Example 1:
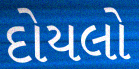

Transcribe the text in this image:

દોયલો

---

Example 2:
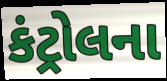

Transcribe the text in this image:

કંટ્રોલના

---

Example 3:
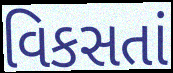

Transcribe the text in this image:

વિકસતાં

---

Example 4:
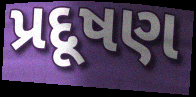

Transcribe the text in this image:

પ્રદૂષણ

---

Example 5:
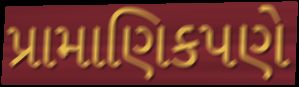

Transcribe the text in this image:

પ્રામાણિકપણે